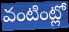
వంటింట్లో